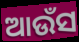
ଆଉଁସ